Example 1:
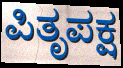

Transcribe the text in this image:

ಪಿತೃಪಕ್ಷ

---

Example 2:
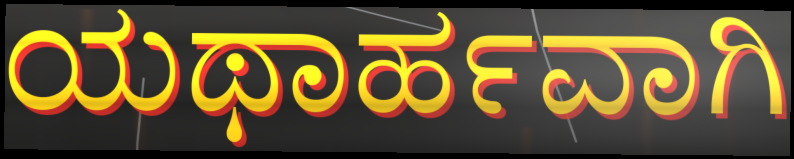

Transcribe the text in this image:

ಯಥಾರ್ಹವಾಗಿ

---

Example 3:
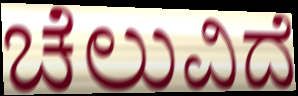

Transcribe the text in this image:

ಚೆಲುವಿದೆ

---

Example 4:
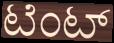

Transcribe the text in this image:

ಟೆಂಟ್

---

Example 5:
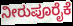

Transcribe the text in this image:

ನೀರುಪೂರೈಕೆ